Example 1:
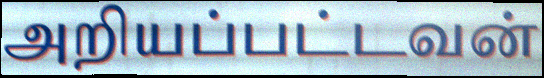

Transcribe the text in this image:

அறியப்பட்டவன்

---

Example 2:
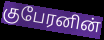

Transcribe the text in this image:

குபேரனின்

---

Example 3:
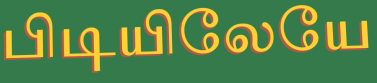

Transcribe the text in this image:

பிடியிலேயே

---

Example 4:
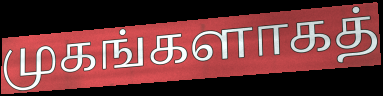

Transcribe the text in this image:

முகங்களாகத்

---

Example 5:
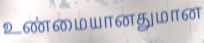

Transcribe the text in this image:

உண்மையானதுமான